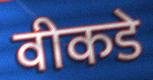
वीकडे